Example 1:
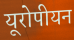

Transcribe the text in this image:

यूरोपीयन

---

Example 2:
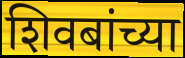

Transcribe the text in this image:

शिवबांच्या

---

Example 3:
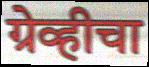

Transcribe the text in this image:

ग्रेव्हीचा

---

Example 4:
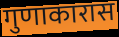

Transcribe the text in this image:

गुणाकारास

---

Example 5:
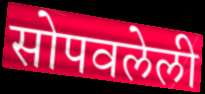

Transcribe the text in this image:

सोपवलेली